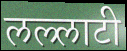
लल्लाटी